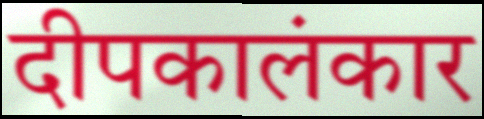
दीपकालंकार